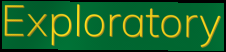
Exploratory